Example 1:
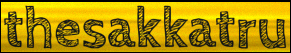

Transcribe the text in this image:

thesakkatru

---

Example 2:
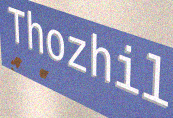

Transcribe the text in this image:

Thozhil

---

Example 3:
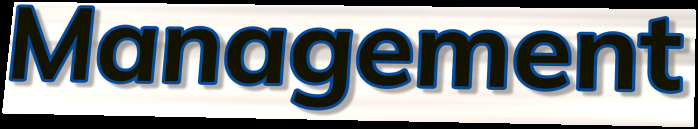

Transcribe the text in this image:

Management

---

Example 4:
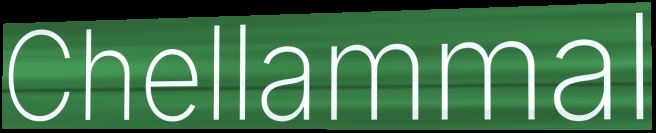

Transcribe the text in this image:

Chellammal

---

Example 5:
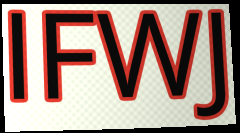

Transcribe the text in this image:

IFWJ